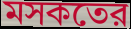
মসকতের